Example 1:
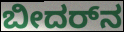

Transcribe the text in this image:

ಬೀದರ್‌ನ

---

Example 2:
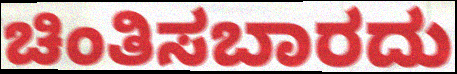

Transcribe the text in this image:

ಚಿಂತಿಸಬಾರದು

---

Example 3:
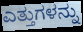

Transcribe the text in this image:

ಎತ್ತುಗಳನ್ನು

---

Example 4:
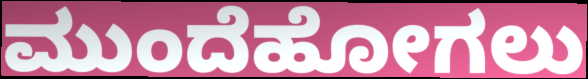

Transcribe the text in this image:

ಮುಂದೆಹೋಗಲು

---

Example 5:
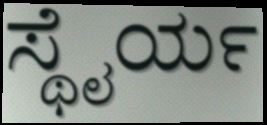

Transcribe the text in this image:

ಸ್ಥೈರ್ಯ